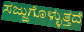
ಸಜ್ಜುಗೊಳ್ಳುತ್ತದೆ